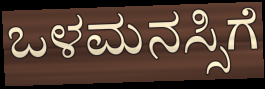
ಒಳಮನಸ್ಸಿಗೆ